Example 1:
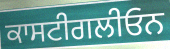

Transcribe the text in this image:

ਕਾਸਟੀਗਲੀਓਨ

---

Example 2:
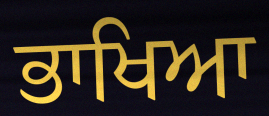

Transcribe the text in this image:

ਭਾਖਿਆ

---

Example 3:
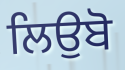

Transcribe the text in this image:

ਲਿਉਬੋ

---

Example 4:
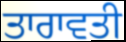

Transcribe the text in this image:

ਤਾਰਾਵਤੀ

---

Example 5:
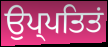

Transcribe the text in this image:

ਉਪ੍ਪਤਿਤਂ